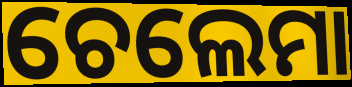
ଚେଲେମା